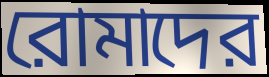
রোমাদের